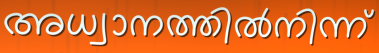
അധ്വാനത്തിൽനിന്ന്